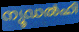
ന്യൂഡൽഹി